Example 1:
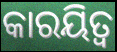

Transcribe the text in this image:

କାରୟିତ୍ୱ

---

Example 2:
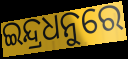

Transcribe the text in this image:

ଇନ୍ଦ୍ରଧନୁରେ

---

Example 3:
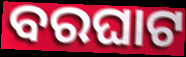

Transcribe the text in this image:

ବରଘାଟ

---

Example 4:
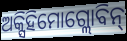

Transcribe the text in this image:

ଅକ୍ସିହିମୋଗ୍ଲୋବିନ୍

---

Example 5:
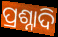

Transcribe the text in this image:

ପ୍ରଶ୍ନାଦି